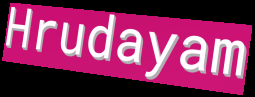
Hrudayam